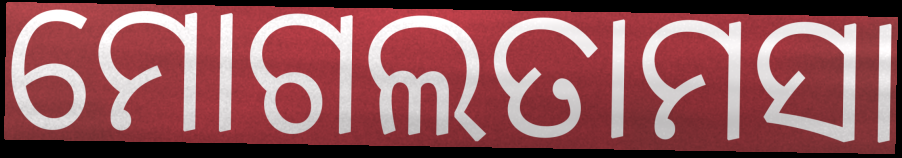
ମୋଗଲତାମସା